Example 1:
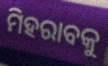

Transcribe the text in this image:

ମିହରାବକୁ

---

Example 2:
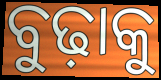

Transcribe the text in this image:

ବୁଢ଼ାକୁ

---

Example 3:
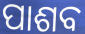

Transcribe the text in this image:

ପାଶବ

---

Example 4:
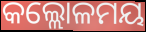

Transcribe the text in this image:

କଲ୍ଲୋଳମୟ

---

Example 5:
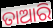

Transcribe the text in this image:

ତାଆରି